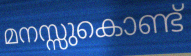
മനസ്സുകൊണ്ട്